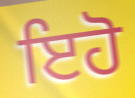
ਇਹੋ